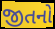
જીતનો